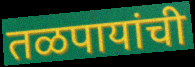
तळपायांची